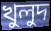
খুলুদ